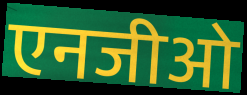
एनजीओ